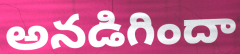
అనడిగిందా